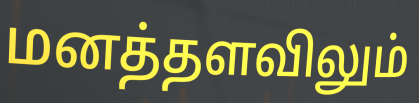
மனத்தளவிலும்